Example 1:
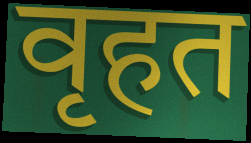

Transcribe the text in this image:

वृहत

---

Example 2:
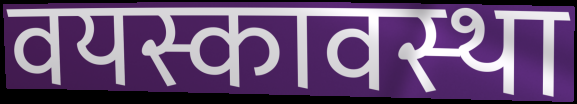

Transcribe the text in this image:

वयस्कावस्था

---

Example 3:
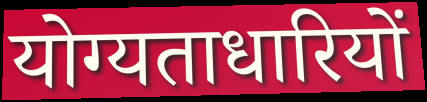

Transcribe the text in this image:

योग्यताधारियों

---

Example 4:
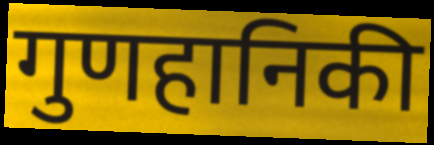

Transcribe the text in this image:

गुणहानिकी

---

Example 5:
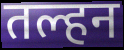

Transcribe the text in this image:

तल्हन